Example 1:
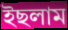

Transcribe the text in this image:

ইছলাম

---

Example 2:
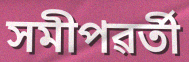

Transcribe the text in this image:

সমীপৱৰ্তী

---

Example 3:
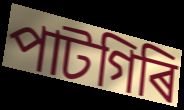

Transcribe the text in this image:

পাটগিৰি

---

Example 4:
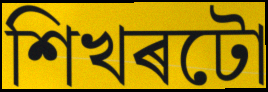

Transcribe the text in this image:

শিখৰটো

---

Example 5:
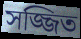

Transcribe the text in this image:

সজ্জিত